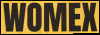
WOMEX